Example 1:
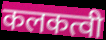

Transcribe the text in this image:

कलकत्वी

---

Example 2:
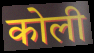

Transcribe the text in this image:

कोली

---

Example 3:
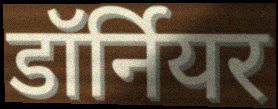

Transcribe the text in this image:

डॉर्नियर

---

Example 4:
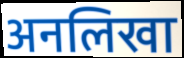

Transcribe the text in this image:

अनलिखा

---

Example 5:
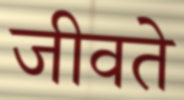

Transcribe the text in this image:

जीवते